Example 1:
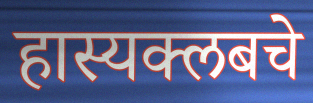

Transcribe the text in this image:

हास्यक्लबचे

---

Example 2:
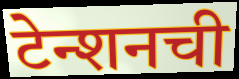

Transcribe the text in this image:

टेन्शनची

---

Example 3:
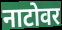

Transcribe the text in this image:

नाटोवर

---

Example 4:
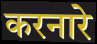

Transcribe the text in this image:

करनारे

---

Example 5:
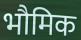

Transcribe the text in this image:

भौमिक